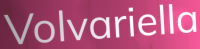
Volvariella